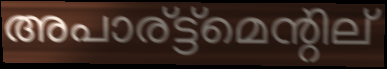
അപാര്ട്ട്മെന്റില്